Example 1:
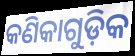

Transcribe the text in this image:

କଣିକାଗୁଡ଼ିକ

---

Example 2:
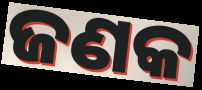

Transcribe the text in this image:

ଜଣକ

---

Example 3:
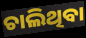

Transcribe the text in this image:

ଚାଲିଥିବା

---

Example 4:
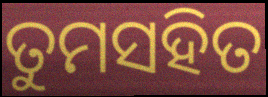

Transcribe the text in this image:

ତୁମସହିତ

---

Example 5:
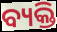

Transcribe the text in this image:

ବ୍ୟକ୍ତି